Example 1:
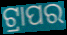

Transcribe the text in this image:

ଟ୍ରାପର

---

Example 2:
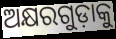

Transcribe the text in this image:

ଅକ୍ଷରଗୁଡ଼ାକୁ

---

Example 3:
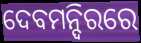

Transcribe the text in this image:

ଦେବମନ୍ଦିରରେ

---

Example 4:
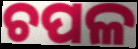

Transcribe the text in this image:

ଚପଳ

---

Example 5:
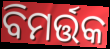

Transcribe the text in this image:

ବିମର୍ତ୍ତକ